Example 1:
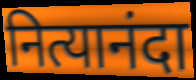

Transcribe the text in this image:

नित्यानंदा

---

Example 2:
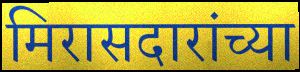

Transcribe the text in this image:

मिरासदारांच्या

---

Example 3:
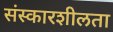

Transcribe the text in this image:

संस्कारशीलता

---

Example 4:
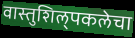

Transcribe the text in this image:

वास्तुशिल्पकलेचा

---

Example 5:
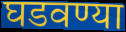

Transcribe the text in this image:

घडवण्या